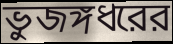
ভুজঙ্গধরের